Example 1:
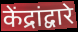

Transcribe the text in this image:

केंद्रांद्वारे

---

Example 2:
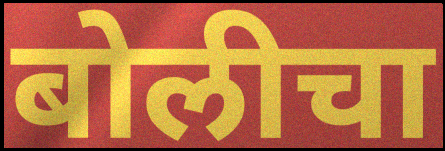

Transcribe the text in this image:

बोलीचा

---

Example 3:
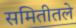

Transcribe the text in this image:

समितीतले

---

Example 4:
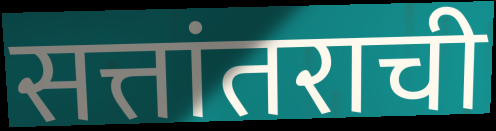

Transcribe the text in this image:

सत्तांतराची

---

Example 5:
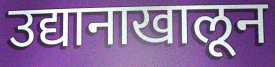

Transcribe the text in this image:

उद्यानाखालून